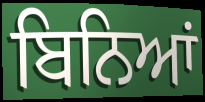
ਬਿਨਿਆਂ